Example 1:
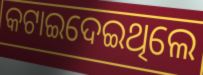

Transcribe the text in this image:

କଟାଇଦେଇଥିଲେ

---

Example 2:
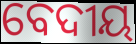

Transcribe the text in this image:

ବେଦୀୟ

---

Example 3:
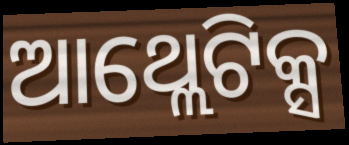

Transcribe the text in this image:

ଆଥ୍ଲେଟିକ୍ସ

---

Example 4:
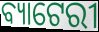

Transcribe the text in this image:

ବ୍ୟାଟେରୀ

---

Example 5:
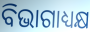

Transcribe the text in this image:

ବିଭାଗାଧ୍ୟକ୍ଷ